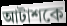
আটাশকে